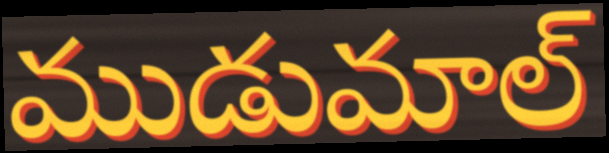
ముడుమాల్